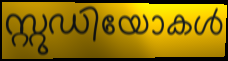
സ്റ്റുഡിയോകൾ